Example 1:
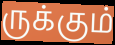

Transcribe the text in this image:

ருக்கும்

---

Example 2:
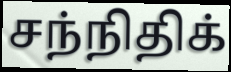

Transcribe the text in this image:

சந்நிதிக்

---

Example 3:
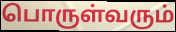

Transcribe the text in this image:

பொருள்வரும்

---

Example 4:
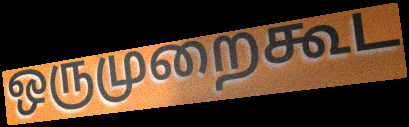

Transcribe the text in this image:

ஒருமுறைகூட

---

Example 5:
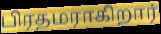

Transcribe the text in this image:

பிரதமராகிறார்